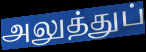
அலுத்துப்